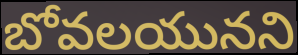
బోవలయునని